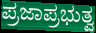
ಪ್ರಜಾಪ್ರಭುತ್ವ